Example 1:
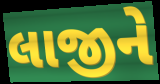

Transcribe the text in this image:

લાજીને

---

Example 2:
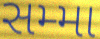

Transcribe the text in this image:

સમ્મા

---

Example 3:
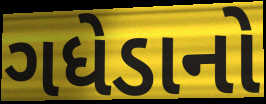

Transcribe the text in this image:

ગધેડાનો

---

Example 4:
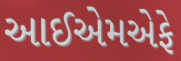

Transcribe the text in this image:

આઈએમએફે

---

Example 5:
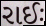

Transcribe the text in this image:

રાઈઃ